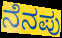
ನೆನಪು